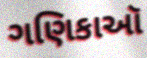
ગણિકાઑ